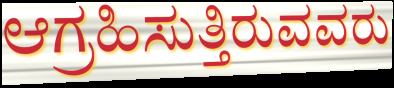
ಆಗ್ರಹಿಸುತ್ತಿರುವವರು